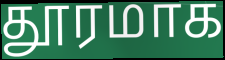
தூரமாக